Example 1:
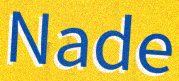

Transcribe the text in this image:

Nade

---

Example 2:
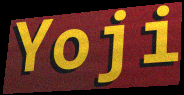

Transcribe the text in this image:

Yoji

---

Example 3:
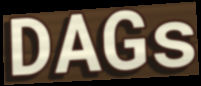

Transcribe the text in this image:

DAGs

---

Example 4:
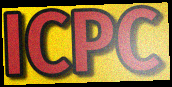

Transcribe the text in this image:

ICPC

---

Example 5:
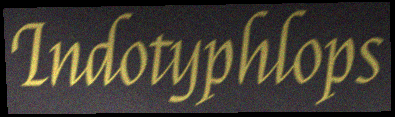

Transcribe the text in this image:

Indotyphlops